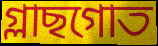
গ্লাছগোত